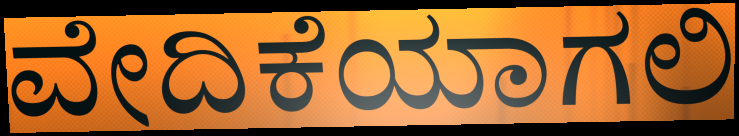
ವೇದಿಕೆಯಾಗಲಿ